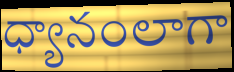
ధ్యానంలాగా